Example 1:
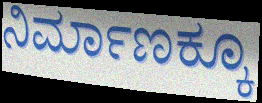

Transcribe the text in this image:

ನಿರ್ಮಾಣಕ್ಕೂ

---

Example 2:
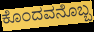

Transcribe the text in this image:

ಕೊಂದವನೊಬ್ಬ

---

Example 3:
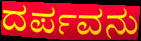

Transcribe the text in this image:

ದರ್ಪವನು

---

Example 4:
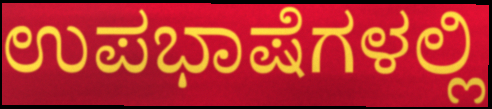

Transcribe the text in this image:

ಉಪಭಾಷೆಗಳಲ್ಲಿ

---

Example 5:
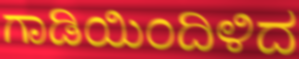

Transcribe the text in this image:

ಗಾಡಿಯಿಂದಿಳಿದ